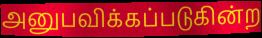
அனுபவிக்கப்படுகின்ற